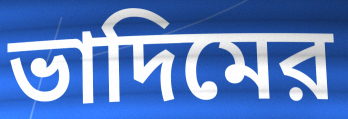
ভাদিমের